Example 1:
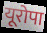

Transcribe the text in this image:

यूरोपा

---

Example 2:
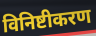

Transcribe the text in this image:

विनिष्टीकरण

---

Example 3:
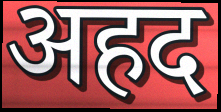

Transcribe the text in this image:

अहद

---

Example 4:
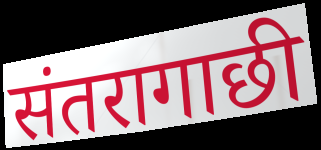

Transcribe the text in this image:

संतरागाछी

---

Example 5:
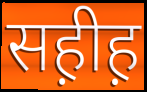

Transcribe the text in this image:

सह़ीह़